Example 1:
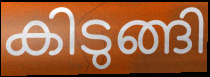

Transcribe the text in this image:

കിടുങ്ങി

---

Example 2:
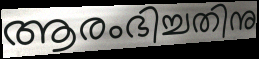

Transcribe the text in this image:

ആരംഭിച്ചതിനു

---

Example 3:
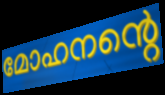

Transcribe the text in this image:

മോഹനന്റെ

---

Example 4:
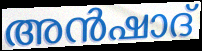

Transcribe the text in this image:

അൻഷാദ്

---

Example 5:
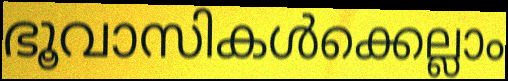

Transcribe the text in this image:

ഭൂവാസികൾക്കെല്ലാം